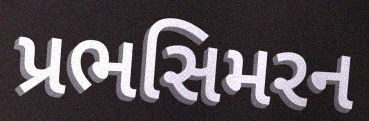
પ્રભસિમરન